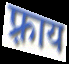
फ़्राय